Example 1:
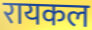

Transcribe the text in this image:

रायकल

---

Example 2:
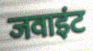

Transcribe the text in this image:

जवाइंट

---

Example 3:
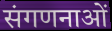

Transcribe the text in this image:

संगणनाओं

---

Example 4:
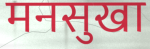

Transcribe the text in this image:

मनसुखा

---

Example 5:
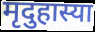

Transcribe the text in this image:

मृदुहास्या